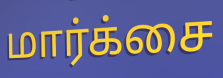
மார்க்சை